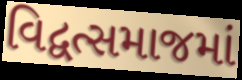
વિદ્વત્સમાજમાં